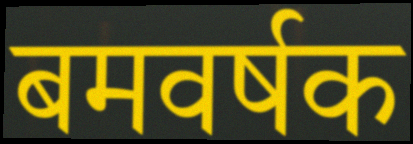
बमवर्षक